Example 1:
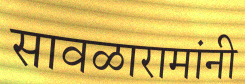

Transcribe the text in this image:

सावळारामांनी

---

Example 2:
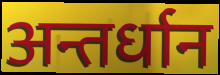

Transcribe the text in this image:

अन्तर्धान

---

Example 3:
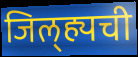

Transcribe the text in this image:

जिल्ह्यची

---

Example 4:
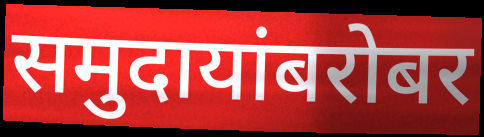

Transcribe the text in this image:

समुदायांबरोबर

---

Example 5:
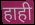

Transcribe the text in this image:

हाही